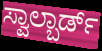
ಸ್ವಾಲ್ಬಾರ್ಡ್